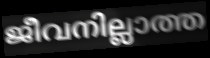
ജീവനില്ലാത്ത